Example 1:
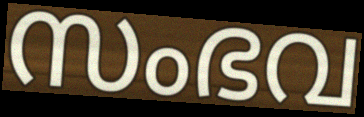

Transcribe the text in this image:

സംഭവ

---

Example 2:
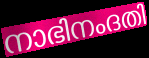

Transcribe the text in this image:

നാഭിനംദതി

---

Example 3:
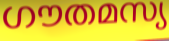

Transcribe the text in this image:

ഗൗതമസ്യ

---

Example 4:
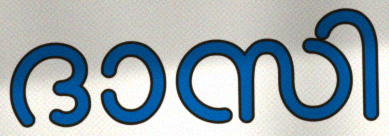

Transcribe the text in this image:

ദാസി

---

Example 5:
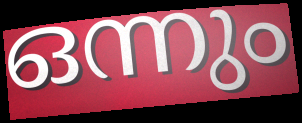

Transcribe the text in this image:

ഒന്നും